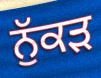
ਨੁੱਕਡ਼